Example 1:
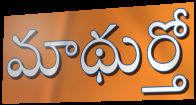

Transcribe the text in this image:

మాథుర్తో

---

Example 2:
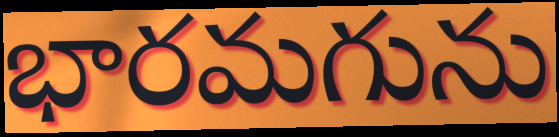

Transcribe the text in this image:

భారమగును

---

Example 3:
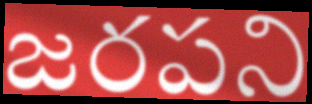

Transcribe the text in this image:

జరపని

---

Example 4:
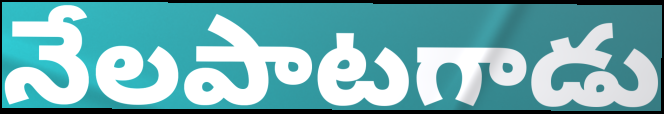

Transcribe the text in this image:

నేలపాటగాడు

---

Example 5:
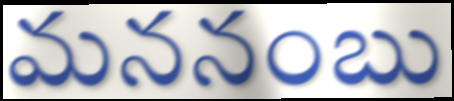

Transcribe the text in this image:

మననంబు